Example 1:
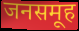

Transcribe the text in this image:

जनसमूह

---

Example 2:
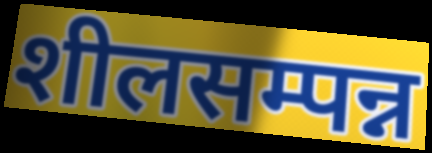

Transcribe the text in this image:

शीलसम्पन्न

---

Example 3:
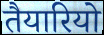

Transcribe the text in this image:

तैयारियो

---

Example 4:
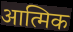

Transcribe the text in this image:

आत्मिक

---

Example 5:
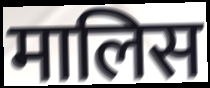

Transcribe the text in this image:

मालिस